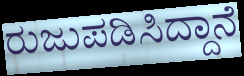
ರುಜುಪಡಿಸಿದ್ದಾನೆ